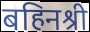
बहिनश्री